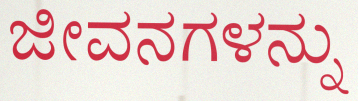
ಜೀವನಗಳನ್ನು